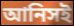
আনিসই